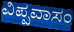
ವಿಪ್ಪವಾಸಂ